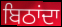
ਬਿਠਾਂਦਾ